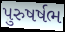
પુરુષર્ષભ